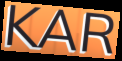
KAR